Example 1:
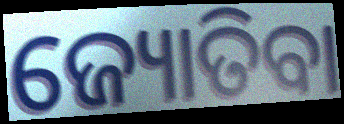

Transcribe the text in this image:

ଜ୍ୟୋତିବା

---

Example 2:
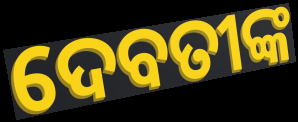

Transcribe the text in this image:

ଦେବତୀଙ୍କ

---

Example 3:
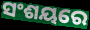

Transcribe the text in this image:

ସଂଶୟରେ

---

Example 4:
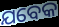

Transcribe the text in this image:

ଯବେକ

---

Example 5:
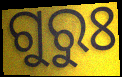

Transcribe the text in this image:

ଗୁରୁଃ